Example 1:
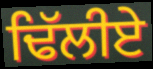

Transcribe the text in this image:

ਢਿੱਲੀਏ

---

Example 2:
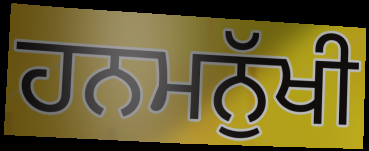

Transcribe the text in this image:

ਹਨਮਨੁੱਖੀ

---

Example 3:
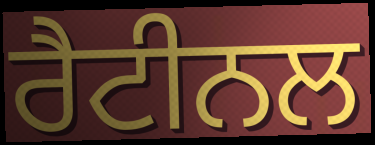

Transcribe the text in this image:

ਰੈਟੀਨਲ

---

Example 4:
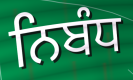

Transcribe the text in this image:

ਨਿਬੰਧ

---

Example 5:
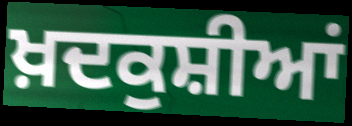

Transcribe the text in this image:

ਖ਼ਦਕੁਸ਼ੀਆਂ